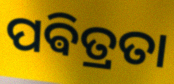
ପଵିତ୍ରତା